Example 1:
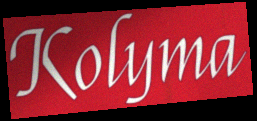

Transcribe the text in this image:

Kolyma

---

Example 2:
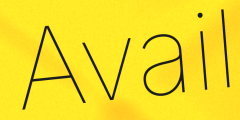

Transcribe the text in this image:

Avail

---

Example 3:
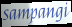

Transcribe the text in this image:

sampangi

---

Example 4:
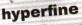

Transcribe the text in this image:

hyperfine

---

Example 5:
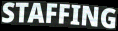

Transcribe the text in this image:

STAFFING